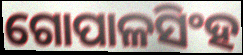
ଗୋପାଳସିଂହ